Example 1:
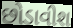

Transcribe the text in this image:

છોડાવીશ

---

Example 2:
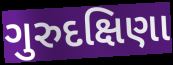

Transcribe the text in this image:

ગુરુદક્ષિણા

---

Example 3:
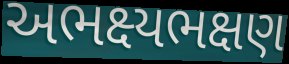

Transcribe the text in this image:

અભક્ષ્યભક્ષણ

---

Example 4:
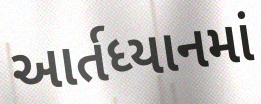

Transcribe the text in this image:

આર્તધ્યાનમાં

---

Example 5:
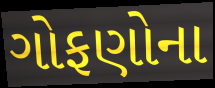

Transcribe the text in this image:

ગોફણોના